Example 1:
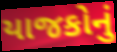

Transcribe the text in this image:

યાજકોનું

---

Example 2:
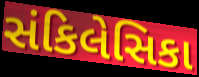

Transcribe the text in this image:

સંકિલેસિકા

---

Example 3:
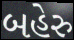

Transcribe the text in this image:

બહેરુ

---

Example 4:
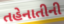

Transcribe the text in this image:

તહેનાતીની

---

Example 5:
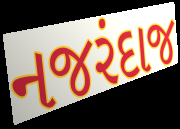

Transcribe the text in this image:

નજરંદાજ